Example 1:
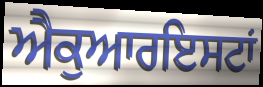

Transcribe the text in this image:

ਐਕੁਆਰਇਸਟਾਂ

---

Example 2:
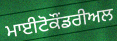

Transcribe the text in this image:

ਮਾਈਟੋਕੌਂਡਰੀਅਲ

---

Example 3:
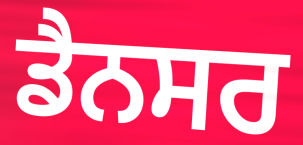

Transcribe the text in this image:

ਡੈਨਸਰ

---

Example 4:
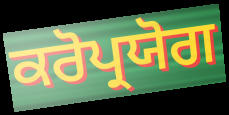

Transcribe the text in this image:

ਕਰੋਪ੍ਰਯੋਗ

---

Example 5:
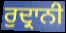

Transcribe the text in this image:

ਰੁਦ੍ਰਾਨੀ